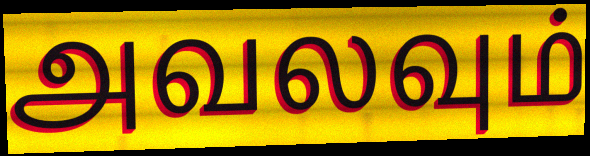
அவலவும்